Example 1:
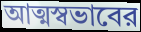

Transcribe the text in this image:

আত্মস্বভাবের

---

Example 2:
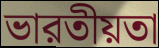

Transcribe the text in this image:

ভারতীয়তা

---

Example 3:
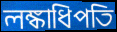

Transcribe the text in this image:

লঙ্কাধিপতি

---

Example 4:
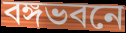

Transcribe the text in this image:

বঙ্গভবনে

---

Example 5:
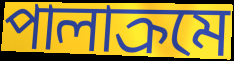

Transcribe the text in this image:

পালাক্রমে